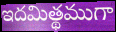
ఇదమిత్థముగా